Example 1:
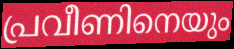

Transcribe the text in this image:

പ്രവീണിനെയും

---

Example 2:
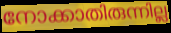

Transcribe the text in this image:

നോക്കാതിരുന്നില്ല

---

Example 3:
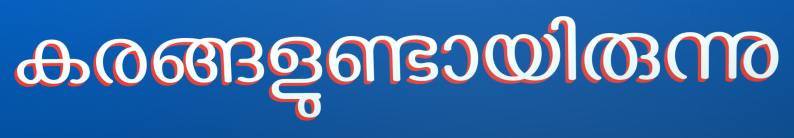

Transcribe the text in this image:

കരങ്ങളുണ്ടായിരുന്നു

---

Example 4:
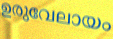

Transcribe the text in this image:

ഉരുവേലായം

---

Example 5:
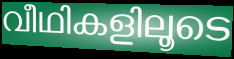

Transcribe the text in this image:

വീഥികളിലൂടെ